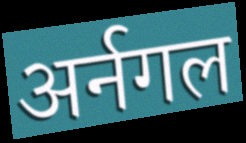
अर्नगल